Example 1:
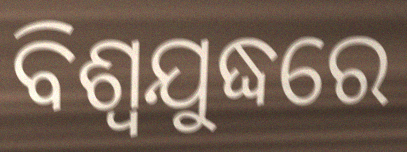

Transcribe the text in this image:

ବିଶ୍ଵଯୁଦ୍ଧରେ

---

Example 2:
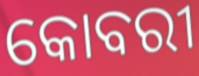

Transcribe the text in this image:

କୋବରୀ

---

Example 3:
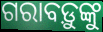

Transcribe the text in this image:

ଗରାବଡ଼ୁଙ୍କୁ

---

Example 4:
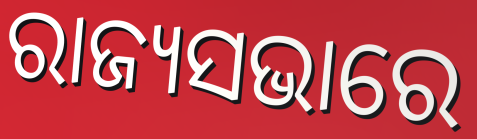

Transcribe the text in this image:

ରାଜ୍ୟସଭାରେ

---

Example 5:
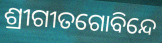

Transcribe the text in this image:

ଶ୍ରୀଗୀତଗୋବିନ୍ଦେ